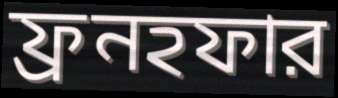
ফ্রনহফার